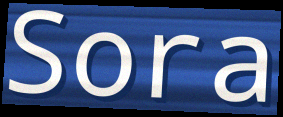
Sora